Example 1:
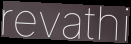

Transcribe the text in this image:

revathi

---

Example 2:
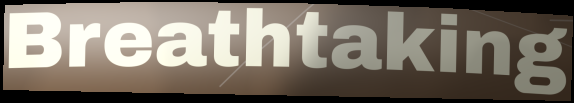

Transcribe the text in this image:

Breathtaking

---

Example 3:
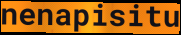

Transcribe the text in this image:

nenapisitu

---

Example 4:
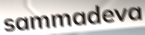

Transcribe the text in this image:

sammadeva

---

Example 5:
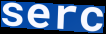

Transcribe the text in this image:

serc